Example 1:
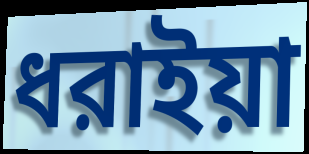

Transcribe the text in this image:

ধরাইয়া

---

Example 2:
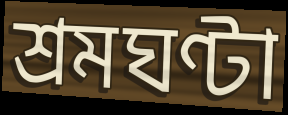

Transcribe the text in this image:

শ্রমঘণ্টা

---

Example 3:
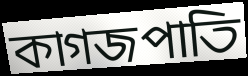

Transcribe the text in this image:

কাগজপাতি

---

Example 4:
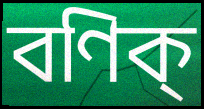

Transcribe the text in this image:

বণিক্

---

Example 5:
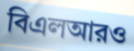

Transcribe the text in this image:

বিএলআরও